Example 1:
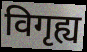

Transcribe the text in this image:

विगृह्य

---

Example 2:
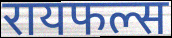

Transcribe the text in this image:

रायफल्स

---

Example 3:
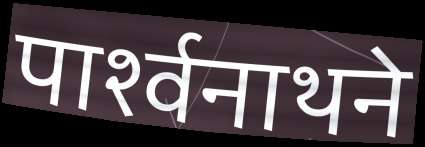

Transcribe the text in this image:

पार्श्वनाथने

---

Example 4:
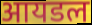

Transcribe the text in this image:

आयडल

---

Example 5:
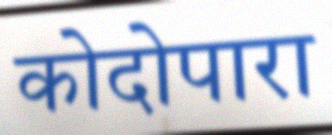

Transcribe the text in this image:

कोदोपारा